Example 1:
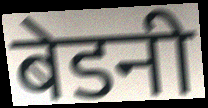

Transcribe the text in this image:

बेडनी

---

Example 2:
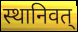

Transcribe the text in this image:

स्थानिवत्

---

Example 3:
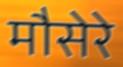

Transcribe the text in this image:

मौसेरे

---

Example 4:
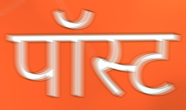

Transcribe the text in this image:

पॉस्ट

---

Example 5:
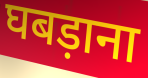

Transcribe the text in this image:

घबड़ाना